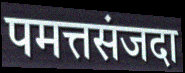
पमत्तसंजदा